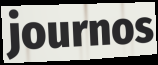
journos